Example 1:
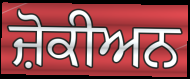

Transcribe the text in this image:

ਜ਼ੋਕੀਅਨ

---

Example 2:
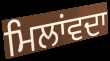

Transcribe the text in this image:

ਮਿਲਾਂਵਦਾ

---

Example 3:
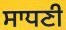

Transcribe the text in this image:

ਸਾਧਣੀ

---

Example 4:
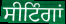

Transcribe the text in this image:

ਸੀਟਿੰਗਾਂ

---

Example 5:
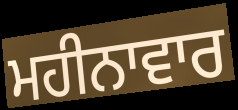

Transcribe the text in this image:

ਮਹੀਨਾਵਾਰ